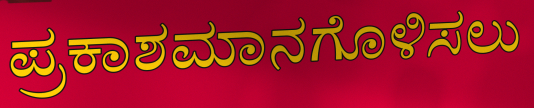
ಪ್ರಕಾಶಮಾನಗೊಳಿಸಲು